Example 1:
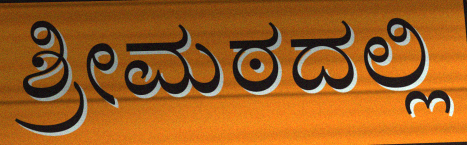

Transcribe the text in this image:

ಶ್ರೀಮಠದಲ್ಲಿ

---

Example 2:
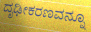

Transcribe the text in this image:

ದೃಢೀಕರಣವನ್ನೂ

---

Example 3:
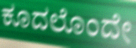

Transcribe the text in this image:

ಕೂದಲೊಂದೇ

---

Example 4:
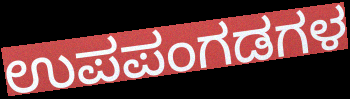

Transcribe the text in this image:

ಉಪಪಂಗಡಗಳ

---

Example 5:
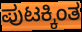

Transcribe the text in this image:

ಪುಟಕ್ಕಿಂತ